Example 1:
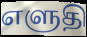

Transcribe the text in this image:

எளுதி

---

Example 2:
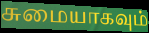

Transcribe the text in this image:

சுமையாகவும்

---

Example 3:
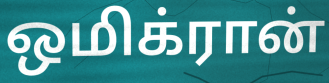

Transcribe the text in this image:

ஒமிக்ரான்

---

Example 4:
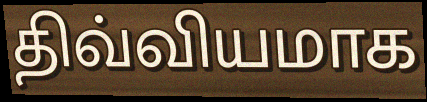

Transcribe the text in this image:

திவ்வியமாக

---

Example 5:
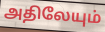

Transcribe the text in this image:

அதிலேயும்